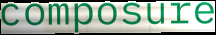
composure